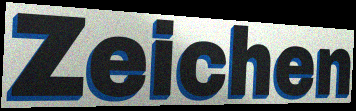
Zeichen